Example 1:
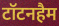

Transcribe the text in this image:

टॉटनहैम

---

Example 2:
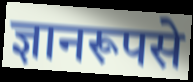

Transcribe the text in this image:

ज्ञानरूपसे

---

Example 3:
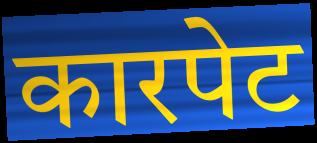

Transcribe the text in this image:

कारपेट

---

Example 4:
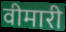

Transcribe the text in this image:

वीमारी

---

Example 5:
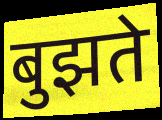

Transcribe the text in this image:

बुझते